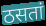
ठसतां